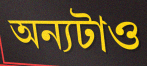
অন্যটাও